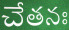
చేతనః